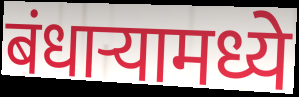
बंधाऱ्यामध्ये